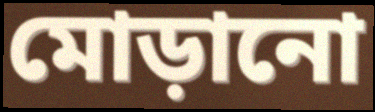
মোড়ানো